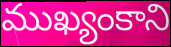
ముఖ్యంకాని